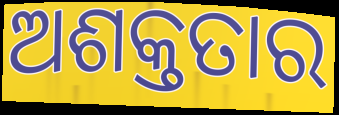
ଅଶକ୍ତତାର